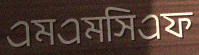
এমএমসিএফ